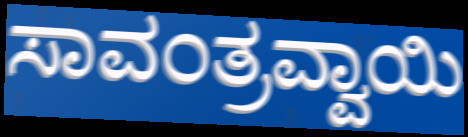
ಸಾವಂತ್ರವ್ವಾಯಿ